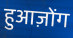
हुआज़ोंग